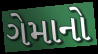
ગેમાનો